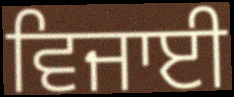
ਵਿਜਾਈ